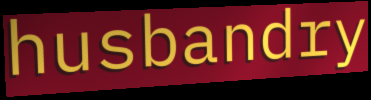
husbandry